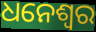
ଧନେଶ୍ବର